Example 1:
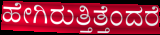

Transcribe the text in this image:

ಹೇಗಿರುತ್ತಿತ್ತೆಂದರೆ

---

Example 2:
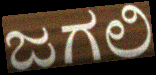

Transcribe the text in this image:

ಜಗಲಿ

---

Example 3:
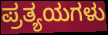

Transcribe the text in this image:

ಪ್ರತ್ಯಯಗಳು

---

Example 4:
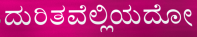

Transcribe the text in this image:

ದುರಿತವೆಲ್ಲಿಯದೋ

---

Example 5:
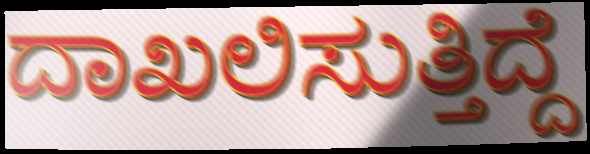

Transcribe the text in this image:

ದಾಖಲಿಸುತ್ತಿದ್ದೆ